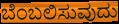
ಬೆಂಬಲಿಸುವುದು